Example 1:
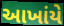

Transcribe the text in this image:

આખાંયે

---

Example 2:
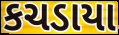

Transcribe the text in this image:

કચડાયા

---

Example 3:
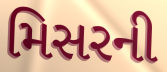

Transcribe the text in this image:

મિસરની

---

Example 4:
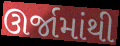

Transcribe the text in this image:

ઊર્જામાંથી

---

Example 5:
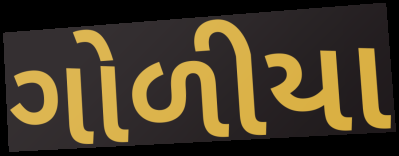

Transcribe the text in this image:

ગોળીયા